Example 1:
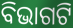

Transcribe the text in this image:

ବିଭାଗଟି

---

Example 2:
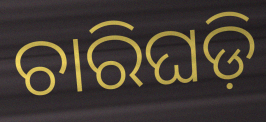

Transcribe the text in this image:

ଚାରିଘଡ଼ି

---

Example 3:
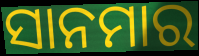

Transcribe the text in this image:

ସାନମାର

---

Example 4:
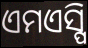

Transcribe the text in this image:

ଏମଏସ୍ପି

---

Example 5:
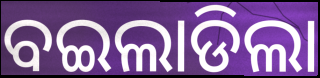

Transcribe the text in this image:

ବଇଲାଡିଲା